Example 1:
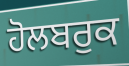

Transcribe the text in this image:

ਹੋਲਬਰੁਕ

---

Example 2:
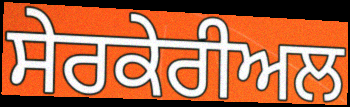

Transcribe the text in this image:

ਸੇਰਕੇਰੀਅਲ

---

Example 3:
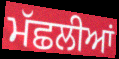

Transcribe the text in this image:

ਮੱਛਲੀਆਂ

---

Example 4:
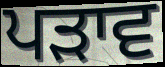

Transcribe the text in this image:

ਪੜਾਵ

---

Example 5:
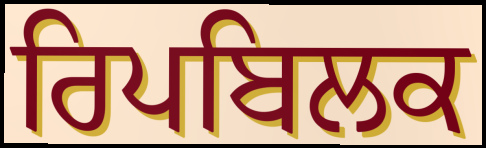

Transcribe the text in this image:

ਰਿਪਬਿਲਕ